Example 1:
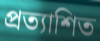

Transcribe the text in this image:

প্রত্যাশিত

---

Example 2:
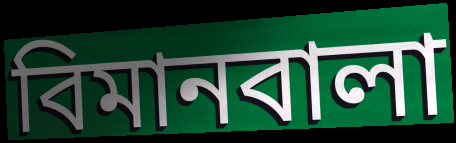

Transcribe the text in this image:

বিমানবালা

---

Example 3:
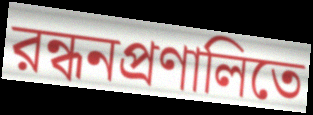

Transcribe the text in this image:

রন্ধনপ্রণালিতে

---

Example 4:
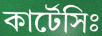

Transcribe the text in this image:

কার্টেসিঃ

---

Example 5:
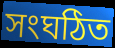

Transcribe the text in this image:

সংঘঠিত